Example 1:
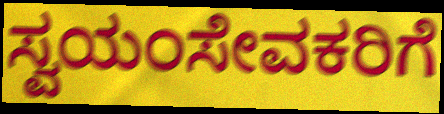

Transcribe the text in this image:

ಸ್ವಯಂಸೇವಕರಿಗೆ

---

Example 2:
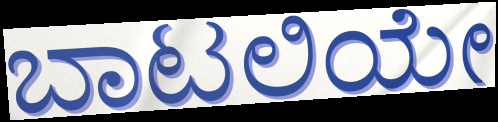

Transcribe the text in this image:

ಬಾಟಲಿಯೇ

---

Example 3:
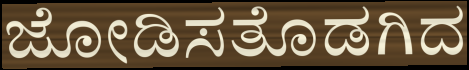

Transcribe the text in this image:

ಜೋಡಿಸತೊಡಗಿದ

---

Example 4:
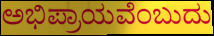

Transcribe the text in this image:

ಅಭಿಪ್ರಾಯವೆಂಬುದು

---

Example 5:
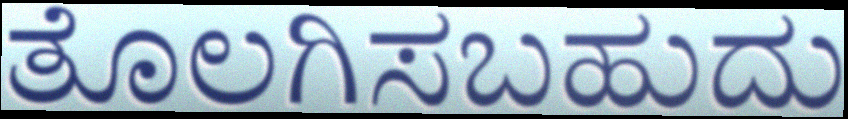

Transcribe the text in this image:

ತೊಲಗಿಸಬಹುದು